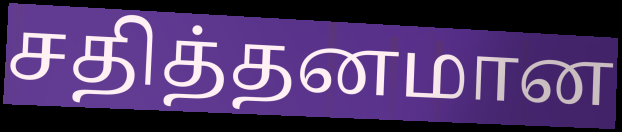
சதித்தனமான